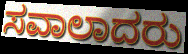
ಸವಾಲಾದರು